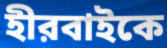
হীরবাইকে